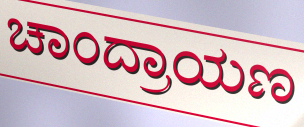
ಚಾಂದ್ರಾಯಣ